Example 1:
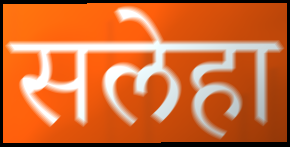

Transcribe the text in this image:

सलेहा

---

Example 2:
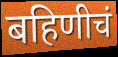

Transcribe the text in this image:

बहिणीचं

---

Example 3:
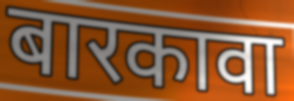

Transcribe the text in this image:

बारकावा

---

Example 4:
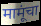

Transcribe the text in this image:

मामूंचा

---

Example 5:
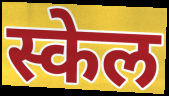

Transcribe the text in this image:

स्केल